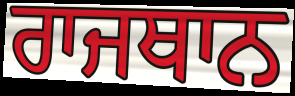
ਰਾਜਥਾਨ